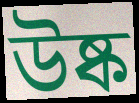
উষ্ক